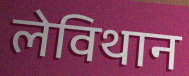
लेविथान